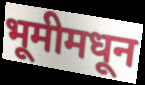
भूमीमधून